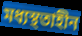
মধ্যস্থতাহীন